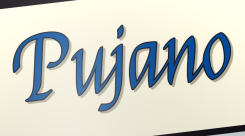
Pujano